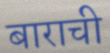
बाराची